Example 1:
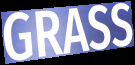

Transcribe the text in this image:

GRASS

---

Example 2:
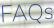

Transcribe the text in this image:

FAQs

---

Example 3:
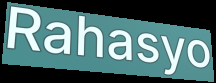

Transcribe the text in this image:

Rahasyo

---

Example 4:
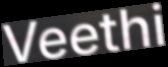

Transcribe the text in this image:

Veethi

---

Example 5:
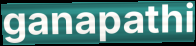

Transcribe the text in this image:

ganapathi